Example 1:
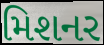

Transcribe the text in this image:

મિશનર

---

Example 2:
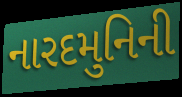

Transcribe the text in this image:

નારદમુનિની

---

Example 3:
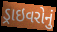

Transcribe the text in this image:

ડ્રાઇવરોનું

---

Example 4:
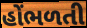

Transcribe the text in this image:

હોંભળતી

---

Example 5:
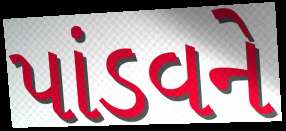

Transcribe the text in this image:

પાંડવને